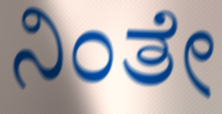
ನಿಂತೇ